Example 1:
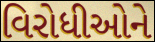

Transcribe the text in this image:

વિરોધીઓને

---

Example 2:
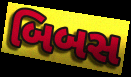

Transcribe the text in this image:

બિબસ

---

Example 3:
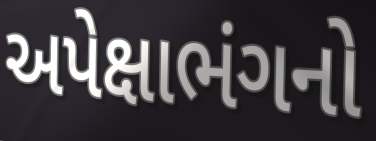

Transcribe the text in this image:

અપેક્ષાભંગનો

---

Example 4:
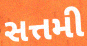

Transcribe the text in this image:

સત્તમી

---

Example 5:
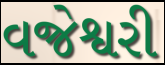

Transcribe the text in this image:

વજ્રેશ્વરી